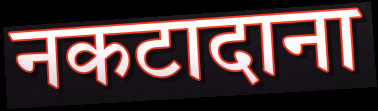
नकटादाना